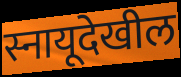
स्नायूदेखील